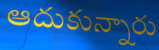
ఆదుకున్నారు